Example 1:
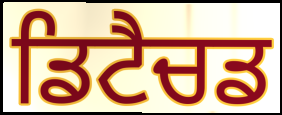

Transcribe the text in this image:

ਡਿਟੈਚਡ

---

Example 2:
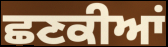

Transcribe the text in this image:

ਛਣਕੀਆਂ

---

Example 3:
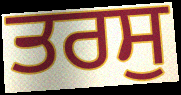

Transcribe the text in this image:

ਤਰਸੁ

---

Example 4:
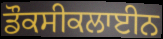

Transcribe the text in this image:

ਡੌਕਸੀਕਲਾਈਨ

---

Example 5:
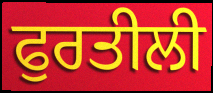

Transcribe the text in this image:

ਫੁਰਤੀਲੀ